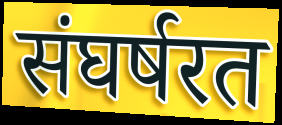
संघर्षरत